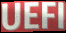
UEFI